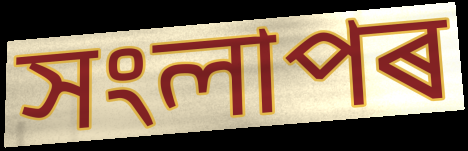
সংলাপৰ